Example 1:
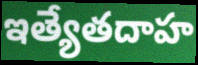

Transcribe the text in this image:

ఇత్యేతదాహ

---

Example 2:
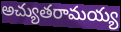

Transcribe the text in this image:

అచ్యుతరామయ్య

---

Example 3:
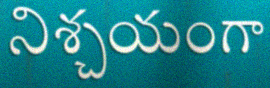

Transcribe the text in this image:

నిశ్చయంగా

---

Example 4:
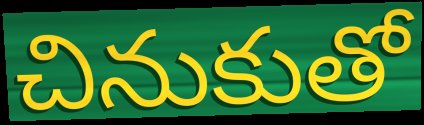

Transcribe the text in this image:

చినుకుతో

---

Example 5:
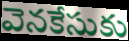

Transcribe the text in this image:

వెనకేసుకు